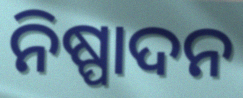
ନିଷ୍ପାଦନ